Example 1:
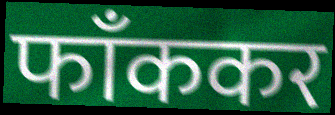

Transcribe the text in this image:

फाँककर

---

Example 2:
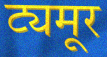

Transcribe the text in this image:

ट्यमूर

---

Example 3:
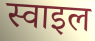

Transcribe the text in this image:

स्वाइल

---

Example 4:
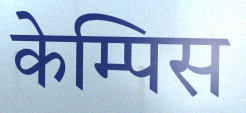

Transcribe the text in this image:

केम्पिस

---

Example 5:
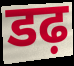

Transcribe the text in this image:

डढ़